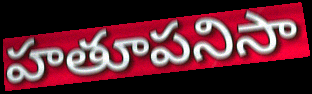
హతూపనిసా